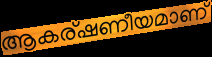
ആകര്ഷണീയമാണ്